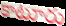
కాటూరు